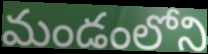
మండంలోని